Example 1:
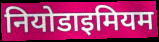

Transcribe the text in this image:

नियोडाइमियम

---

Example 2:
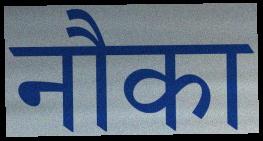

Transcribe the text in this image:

नौका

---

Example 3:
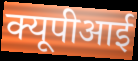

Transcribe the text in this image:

क्यूपीआई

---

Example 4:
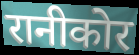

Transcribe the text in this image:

रानीकोर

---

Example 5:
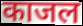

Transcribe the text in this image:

काजल